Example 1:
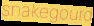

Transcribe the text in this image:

snakegourd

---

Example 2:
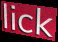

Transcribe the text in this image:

lick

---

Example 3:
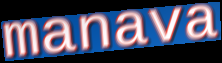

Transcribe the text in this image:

manava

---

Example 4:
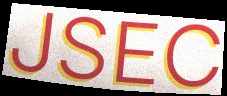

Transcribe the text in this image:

JSEC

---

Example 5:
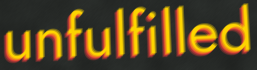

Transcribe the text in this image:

unfulfilled